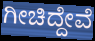
ಗೀಚಿದ್ದೇವೆ